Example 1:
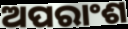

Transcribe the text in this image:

ଅପରାଂଶ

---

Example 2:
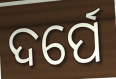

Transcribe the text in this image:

ଦର୍ପେ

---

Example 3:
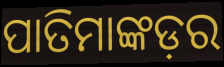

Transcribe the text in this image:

ପାତିମାଙ୍କଡ଼ର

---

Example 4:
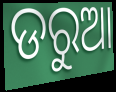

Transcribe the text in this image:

ଡରୁଆ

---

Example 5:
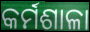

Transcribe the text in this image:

କର୍ମଶାଳା